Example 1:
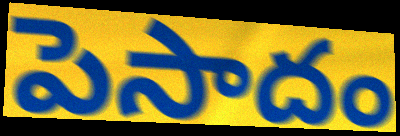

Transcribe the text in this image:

పెసాదం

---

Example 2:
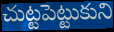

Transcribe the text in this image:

చుట్టపెట్టుకుని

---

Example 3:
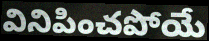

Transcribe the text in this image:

వినిపించపోయే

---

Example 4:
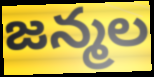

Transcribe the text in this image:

జన్మల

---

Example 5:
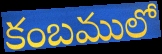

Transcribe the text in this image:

కంబములో